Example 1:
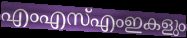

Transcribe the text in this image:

എംഎസ്എംഇകളും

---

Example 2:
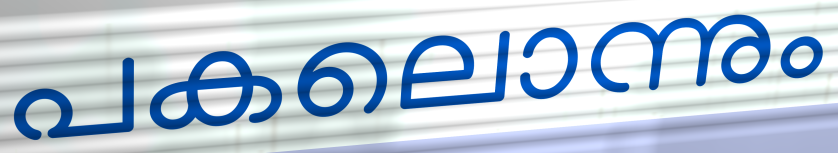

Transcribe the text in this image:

പകലൊന്നും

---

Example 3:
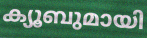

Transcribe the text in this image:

ക്യൂബുമായി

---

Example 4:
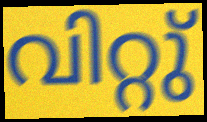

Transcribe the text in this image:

വിറ്റു്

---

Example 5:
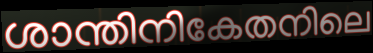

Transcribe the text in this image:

ശാന്തിനികേതനിലെ